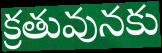
క్రతువునకు